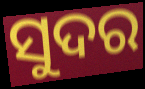
ସୁଦର